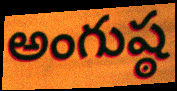
అంగుష్ఠ